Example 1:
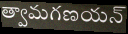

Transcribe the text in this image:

త్వామగణయన్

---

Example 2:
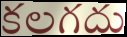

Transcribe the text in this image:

కలగదు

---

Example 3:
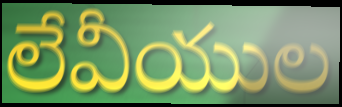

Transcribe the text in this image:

లేవీయుల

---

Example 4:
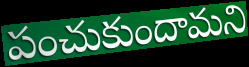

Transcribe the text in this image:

పంచుకుందామని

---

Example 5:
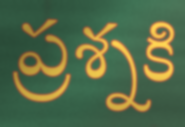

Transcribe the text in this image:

ప్రశ్నకి